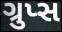
ગ્રુપ્સ